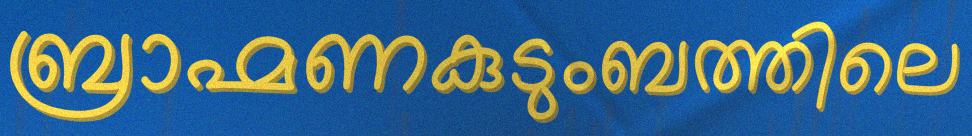
ബ്രാഹ്മണകുടുംബത്തിലെ